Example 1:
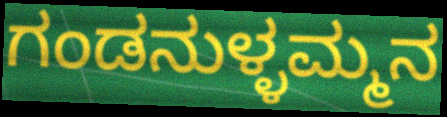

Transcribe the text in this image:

ಗಂಡನುಳ್ಳಮ್ಮನ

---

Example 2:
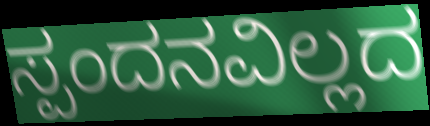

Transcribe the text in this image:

ಸ್ಪಂದನವಿಲ್ಲದ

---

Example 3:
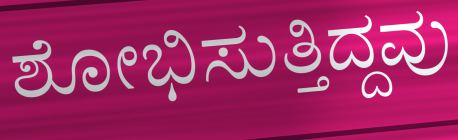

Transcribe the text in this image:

ಶೋಭಿಸುತ್ತಿದ್ದವು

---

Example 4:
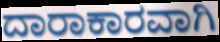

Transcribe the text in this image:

ದಾರಾಕಾರವಾಗಿ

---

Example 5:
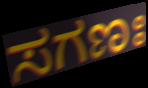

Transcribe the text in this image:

ಸಗಣಃ